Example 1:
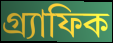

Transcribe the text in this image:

গ্র্যাফিক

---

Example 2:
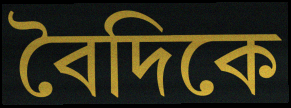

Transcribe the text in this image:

বৈদিকে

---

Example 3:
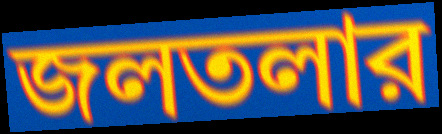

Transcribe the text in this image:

জলতলার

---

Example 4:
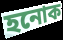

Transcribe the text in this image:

হনোক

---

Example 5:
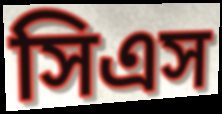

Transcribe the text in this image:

সিএস